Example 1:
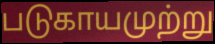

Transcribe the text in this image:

படுகாயமுற்று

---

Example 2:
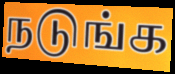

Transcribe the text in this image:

நடுங்க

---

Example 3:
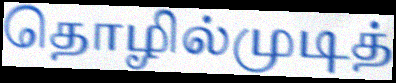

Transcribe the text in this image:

தொழில்முடித்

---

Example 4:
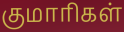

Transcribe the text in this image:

குமாரிகள்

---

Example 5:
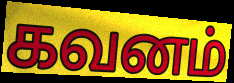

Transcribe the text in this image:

கவனம்